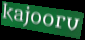
kajooru